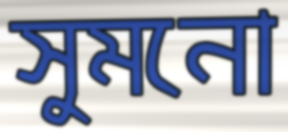
সুমনো